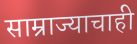
साम्राज्याचाही